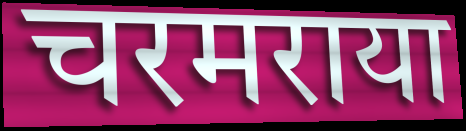
चरमराया